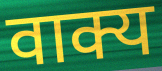
वाक्य